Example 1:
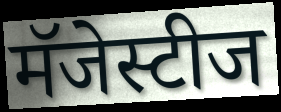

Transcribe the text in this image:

मॅजेस्टीज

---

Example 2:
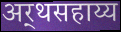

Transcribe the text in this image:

अर्थसहाय्य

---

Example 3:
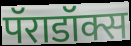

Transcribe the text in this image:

पॅराडॉक्स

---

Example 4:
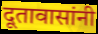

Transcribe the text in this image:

दूतावासांनी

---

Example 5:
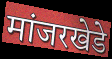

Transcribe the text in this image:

मांजरखेडे